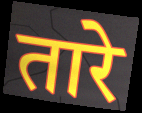
तारे